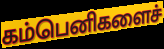
கம்பெனிகளைச்